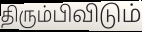
திரும்பிவிடும்